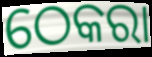
ଠେକରା